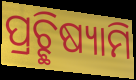
ପ୍ରଚ୍ଛିଷ୍ୟାମି